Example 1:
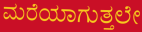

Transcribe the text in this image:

ಮರೆಯಾಗುತ್ತಲೇ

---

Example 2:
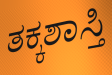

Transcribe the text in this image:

ತಕ್ಕಶಾಸ್ತಿ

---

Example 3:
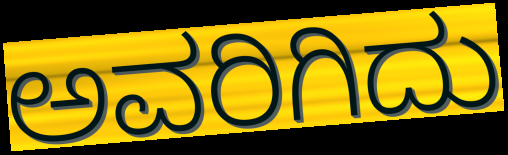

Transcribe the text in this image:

ಅವರಿಗಿದು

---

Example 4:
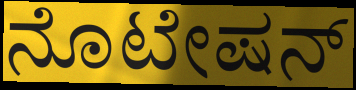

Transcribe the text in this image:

ನೊಟೇಷನ್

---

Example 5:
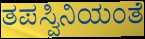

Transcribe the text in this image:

ತಪಸ್ವಿನಿಯಂತೆ